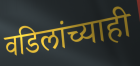
वडिलांच्याही